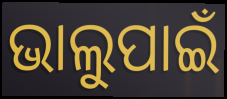
ଭାଲୁପାଇଁ